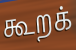
கூறக்